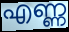
എണ്ണ